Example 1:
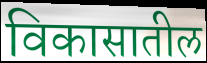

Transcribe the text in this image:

विकासातील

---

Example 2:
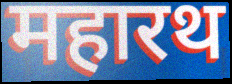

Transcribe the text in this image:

महारथ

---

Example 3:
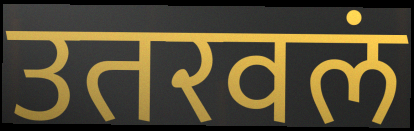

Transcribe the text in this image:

उतरवलं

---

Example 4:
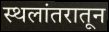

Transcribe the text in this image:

स्थलांतरातून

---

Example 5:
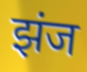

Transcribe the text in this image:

झंज